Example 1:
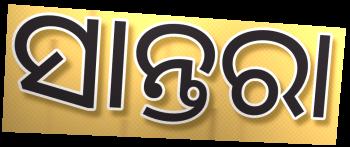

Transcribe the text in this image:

ସାନ୍ତରା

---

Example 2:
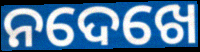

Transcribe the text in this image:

ନଦେଖେ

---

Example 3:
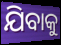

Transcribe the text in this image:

ଯିବାକୁ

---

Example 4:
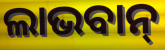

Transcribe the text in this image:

ଲାଭବାନ୍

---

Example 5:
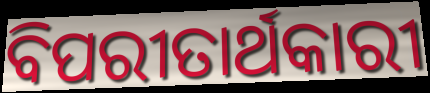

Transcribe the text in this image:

ବିପରୀତାର୍ଥକାରୀ